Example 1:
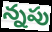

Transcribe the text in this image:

న్నపు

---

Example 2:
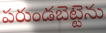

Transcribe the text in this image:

పరుండబెట్టెను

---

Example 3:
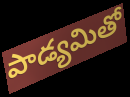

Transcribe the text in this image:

పాడ్యమితో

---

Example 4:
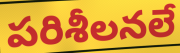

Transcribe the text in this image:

పరిశీలనలే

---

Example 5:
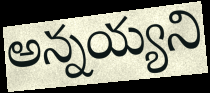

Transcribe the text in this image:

అన్నయ్యని